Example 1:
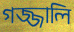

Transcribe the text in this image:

গজ্জালি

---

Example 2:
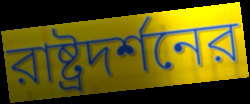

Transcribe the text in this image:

রাষ্ট্রদর্শনের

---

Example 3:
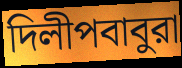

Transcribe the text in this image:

দিলীপবাবুরা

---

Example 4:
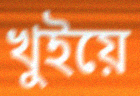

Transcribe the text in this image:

খুইয়ে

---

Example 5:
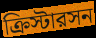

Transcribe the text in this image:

ক্রিস্টারসন